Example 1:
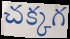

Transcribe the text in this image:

చక్కగ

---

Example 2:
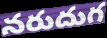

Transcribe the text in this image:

నరుదుగ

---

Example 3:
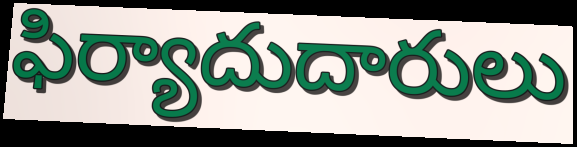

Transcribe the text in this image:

ఫిర్యాదుదారులు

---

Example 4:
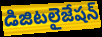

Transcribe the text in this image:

డిజిటలైజేషన్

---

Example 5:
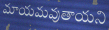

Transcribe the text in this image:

మాయమవుతాయని